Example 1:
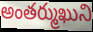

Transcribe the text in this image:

అంతర్ముఖుని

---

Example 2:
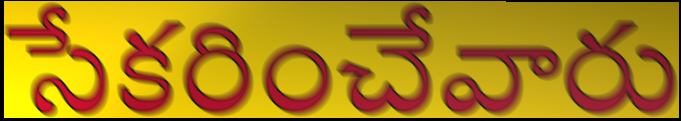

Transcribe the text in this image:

సేకరించేవారు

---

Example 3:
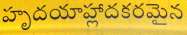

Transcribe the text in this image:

హృదయాహ్లాదకరమైన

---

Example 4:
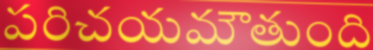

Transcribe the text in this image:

పరిచయమౌతుంది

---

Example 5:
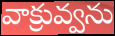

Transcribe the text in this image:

వాక్రువ్వను